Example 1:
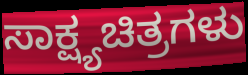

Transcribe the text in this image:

ಸಾಕ್ಷ್ಯಚಿತ್ರಗಳು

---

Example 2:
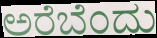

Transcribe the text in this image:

ಅರೆಬೆಂದು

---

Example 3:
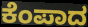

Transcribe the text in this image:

ಕೆಂಪಾದ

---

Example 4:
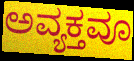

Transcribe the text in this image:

ಅವ್ಯಕ್ತವೂ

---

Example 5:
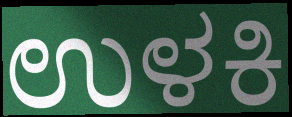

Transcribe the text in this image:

ಉಳಕಿ